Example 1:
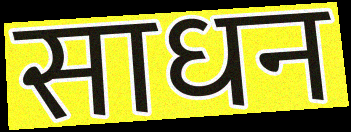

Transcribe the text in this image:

साधन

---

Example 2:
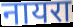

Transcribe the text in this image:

नायरा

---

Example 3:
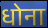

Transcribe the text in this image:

धोना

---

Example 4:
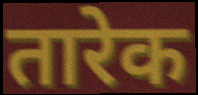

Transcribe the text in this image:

तारेक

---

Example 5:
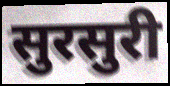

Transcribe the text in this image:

सुरसुरी